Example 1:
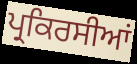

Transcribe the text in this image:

ਪ੍ਰਕਿਰਸੀਆਂ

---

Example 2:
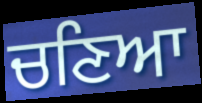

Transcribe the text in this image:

ਚਣਿਆ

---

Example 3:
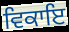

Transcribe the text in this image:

ਵਿਕਾਇ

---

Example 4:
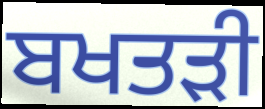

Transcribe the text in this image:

ਬਖਤੜੀ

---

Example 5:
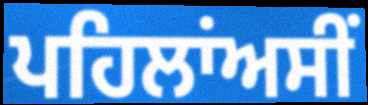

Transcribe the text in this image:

ਪਹਿਲਾਂਅਸੀਂ